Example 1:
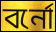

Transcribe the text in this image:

বর্নো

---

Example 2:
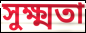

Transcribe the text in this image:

সুক্ষ্মতা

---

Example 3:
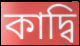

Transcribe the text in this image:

কাদ্বি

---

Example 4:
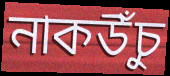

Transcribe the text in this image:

নাকউঁচু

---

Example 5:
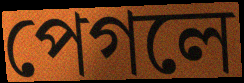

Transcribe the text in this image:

পেগলে